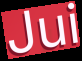
Jui